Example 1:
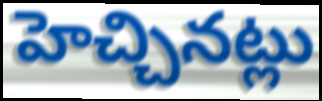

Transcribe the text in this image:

హెచ్చినట్లు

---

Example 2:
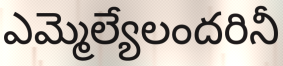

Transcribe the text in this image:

ఎమ్మెల్యేలందరినీ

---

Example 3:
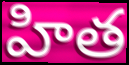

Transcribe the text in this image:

హిత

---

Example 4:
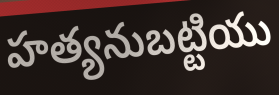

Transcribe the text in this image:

హత్యనుబట్టియు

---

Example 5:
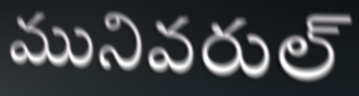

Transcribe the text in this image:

మునివరుల్